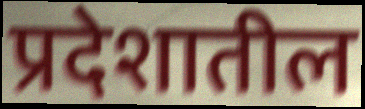
प्रदेशातील